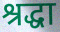
श्रद्धा